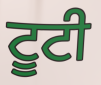
ਟੂਟੀ